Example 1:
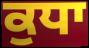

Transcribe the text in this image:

ਕੁਧਾ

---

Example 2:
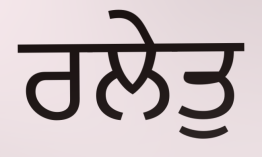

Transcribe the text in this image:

ਰਲੇਤੁ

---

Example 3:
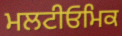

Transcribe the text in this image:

ਮਲਟੀਓਮਿਕ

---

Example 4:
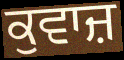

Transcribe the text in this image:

ਕੁਵਾਜ਼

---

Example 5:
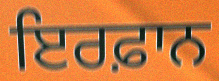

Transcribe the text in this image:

ਇਰਫ਼ਾਨ